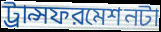
ট্রান্সফরমেশনটা